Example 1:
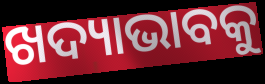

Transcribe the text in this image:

ଖଦ୍ୟାଭାବକୁ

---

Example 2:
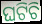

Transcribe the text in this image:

ଘଟିଚି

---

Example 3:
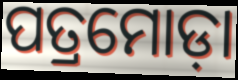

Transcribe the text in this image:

ପତ୍ରମୋଡ଼ା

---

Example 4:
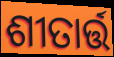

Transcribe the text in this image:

ଶୀତାର୍ତ୍ତ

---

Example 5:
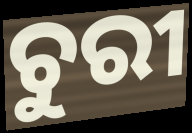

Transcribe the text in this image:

ଚୁରୀ